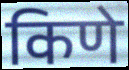
किणे